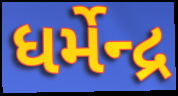
ધર્મેન્દ્ર